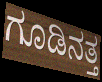
ಗೂಡಿನತ್ತ